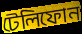
টেলিফোন